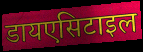
डायएसिटाइल